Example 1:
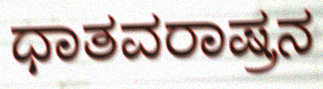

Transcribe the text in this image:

ಧಾತವರಾಷ್ರನ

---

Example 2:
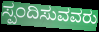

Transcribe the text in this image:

ಸ್ಪಂದಿಸುವವರು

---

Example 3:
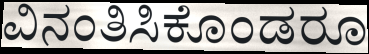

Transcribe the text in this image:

ವಿನಂತಿಸಿಕೊಂಡರೂ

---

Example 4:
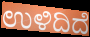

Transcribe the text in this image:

ಉಳಿದಿದೆ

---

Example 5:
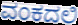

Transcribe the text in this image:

ವಂಕದಲಿ